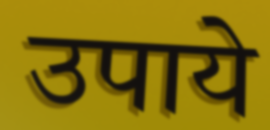
उपाये